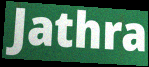
Jathra